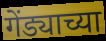
गेंड्याच्या